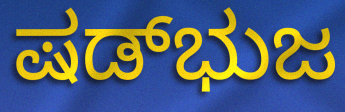
ಷಡ್‌ಭುಜ